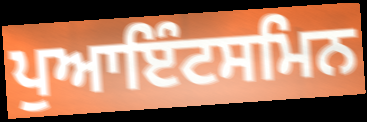
ਪੁਆਇੰਟਸਮਿਨ